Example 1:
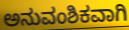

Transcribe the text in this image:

ಅನುವಂಶಿಕವಾಗಿ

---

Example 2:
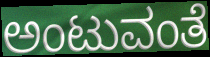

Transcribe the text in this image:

ಅಂಟುವಂತೆ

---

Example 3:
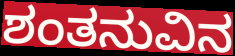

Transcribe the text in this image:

ಶಂತನುವಿನ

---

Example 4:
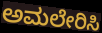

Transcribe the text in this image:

ಅಮಲೇರಿಸಿ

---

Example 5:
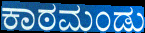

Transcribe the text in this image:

ಕಾಠಮಂಡು